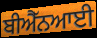
ਬੀਐੱਨਆਈ